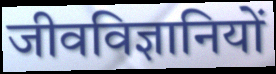
जीवविज्ञानियों